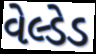
વેલ્ડેડ